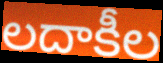
లదాకీల